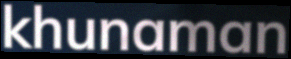
khunaman